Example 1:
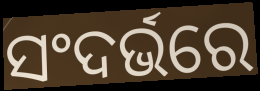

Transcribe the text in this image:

ସଂଦର୍ଭରେ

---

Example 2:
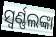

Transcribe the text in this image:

ସ୍ବର୍ଣ୍ଣଲଙ୍କା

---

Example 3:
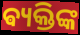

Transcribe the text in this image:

ଵ୍ୟକ୍ତିଙ୍କ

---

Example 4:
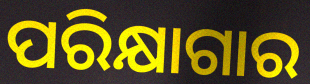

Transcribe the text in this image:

ପରିକ୍ଷାଗାର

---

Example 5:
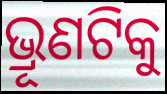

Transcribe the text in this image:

ଭ୍ରୂଣଟିକୁ